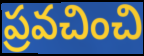
ప్రవచించి